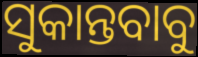
ସୁକାନ୍ତବାବୁ